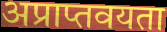
अप्राप्तवयता